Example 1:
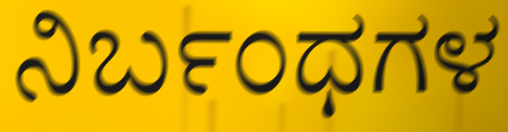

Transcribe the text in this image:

ನಿರ್ಬಂಧಗಳ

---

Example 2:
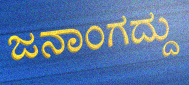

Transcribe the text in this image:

ಜನಾಂಗದ್ದು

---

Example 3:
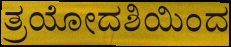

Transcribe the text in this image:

ತ್ರಯೋದಶಿಯಿಂದ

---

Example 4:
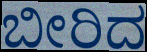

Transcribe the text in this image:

ಬೀರಿದ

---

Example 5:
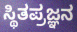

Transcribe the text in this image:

ಸ್ಥಿತಪ್ರಜ್ಞನ